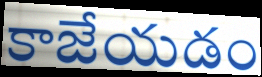
కాజేయడం